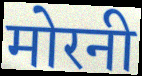
मोरनी